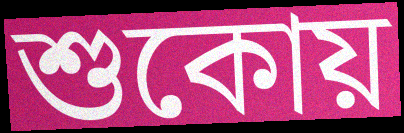
শুকোয়